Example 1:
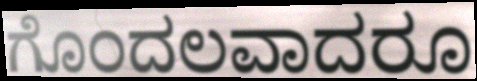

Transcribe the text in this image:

ಗೊಂದಲವಾದರೂ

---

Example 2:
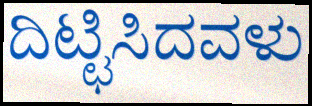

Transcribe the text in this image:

ದಿಟ್ಟಿಸಿದವಳು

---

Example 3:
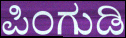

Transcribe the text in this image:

ಪಿಂಗುಡಿ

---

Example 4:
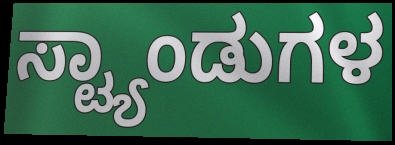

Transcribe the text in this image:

ಸ್ಟ್ಯಾಂಡುಗಳ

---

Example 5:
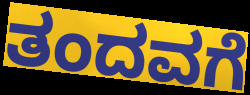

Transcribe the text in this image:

ತಂದವಗೆ